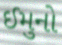
ઈમુનો